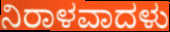
ನಿರಾಳವಾದಳು